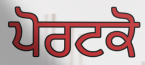
ਪੋਰਟਕੋ